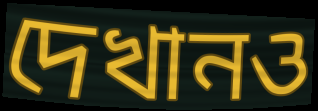
দেখানও